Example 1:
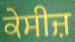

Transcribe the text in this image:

ਕੇਸੀਜ਼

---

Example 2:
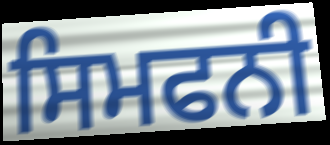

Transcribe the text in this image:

ਸਿਮਫਨੀ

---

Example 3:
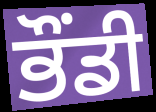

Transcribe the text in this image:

ਭੌਂਡੀ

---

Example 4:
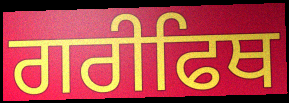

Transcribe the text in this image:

ਗਰੀਫਿਥ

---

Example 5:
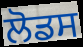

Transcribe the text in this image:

ਲੋਡਸ